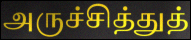
அருச்சித்துத்